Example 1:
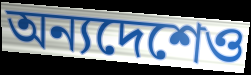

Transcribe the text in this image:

অন্যদেশেও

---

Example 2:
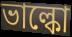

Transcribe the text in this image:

ভাল্কো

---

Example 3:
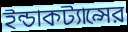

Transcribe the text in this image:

ইন্ডাকট্যান্সের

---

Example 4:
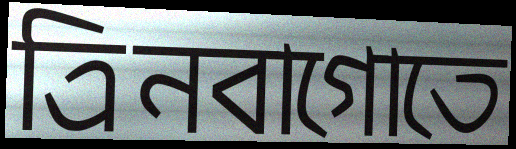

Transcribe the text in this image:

ত্রিনবাগোতে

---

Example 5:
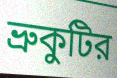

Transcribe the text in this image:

ভ্রুকুটির